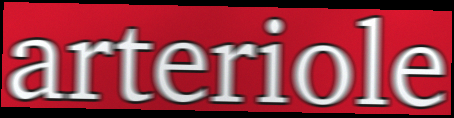
arteriole